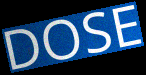
DOSE